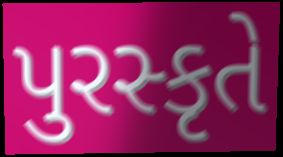
પુરસ્કૃતે